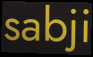
sabji